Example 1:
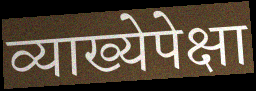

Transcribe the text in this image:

व्याख्येपेक्षा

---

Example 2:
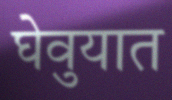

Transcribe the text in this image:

घेवुयात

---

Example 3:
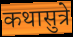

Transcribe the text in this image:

कथासुत्रे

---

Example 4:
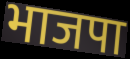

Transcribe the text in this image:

भाजपा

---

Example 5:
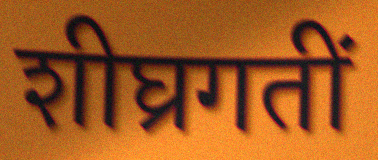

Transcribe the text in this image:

शीघ्रगतीं